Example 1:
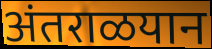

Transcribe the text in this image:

अंतराळयान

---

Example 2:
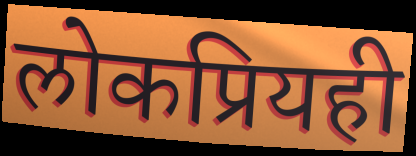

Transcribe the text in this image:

लोकप्रियही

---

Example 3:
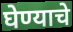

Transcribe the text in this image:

घेण्याचे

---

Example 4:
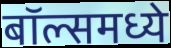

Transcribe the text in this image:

बॉल्समध्ये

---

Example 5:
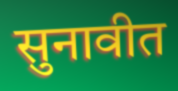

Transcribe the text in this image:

सुनावीत